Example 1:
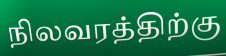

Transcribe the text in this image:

நிலவரத்திற்கு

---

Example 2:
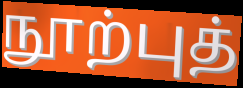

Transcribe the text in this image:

நூற்புத்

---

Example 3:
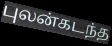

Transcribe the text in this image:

புலன்கடந்த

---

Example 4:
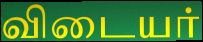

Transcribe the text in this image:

விடையர்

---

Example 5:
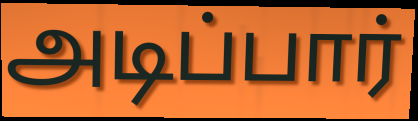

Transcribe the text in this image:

அடிப்பார்